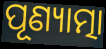
ପୂଣ୍ୟାତ୍ମା